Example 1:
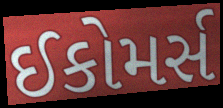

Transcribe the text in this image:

ઈકોમર્સ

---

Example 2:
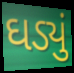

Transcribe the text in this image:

ઘડ્યું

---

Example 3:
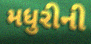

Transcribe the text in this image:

મધુરીની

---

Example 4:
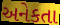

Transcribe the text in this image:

અનેકતા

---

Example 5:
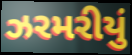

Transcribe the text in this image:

ઝરમરીયું